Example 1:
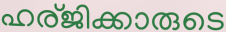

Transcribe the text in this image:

ഹര്ജിക്കാരുടെ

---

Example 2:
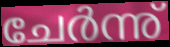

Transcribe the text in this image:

ചേർന്നു്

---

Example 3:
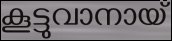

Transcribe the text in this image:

കൂട്ടുവാനായ്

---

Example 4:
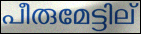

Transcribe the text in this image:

പീരുമേട്ടില്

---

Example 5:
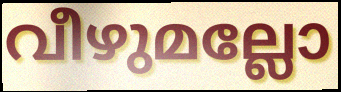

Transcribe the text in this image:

വീഴുമല്ലോ